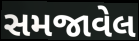
સમજાવેલ